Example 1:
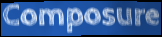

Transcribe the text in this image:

Composure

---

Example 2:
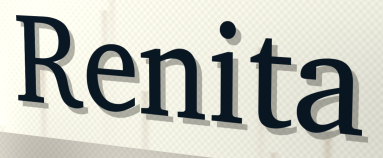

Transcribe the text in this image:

Renita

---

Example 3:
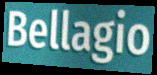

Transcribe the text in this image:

Bellagio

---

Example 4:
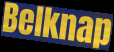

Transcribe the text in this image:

Belknap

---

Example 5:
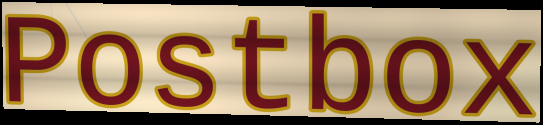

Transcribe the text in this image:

Postbox